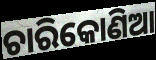
ଚାରିକୋଣିଆ